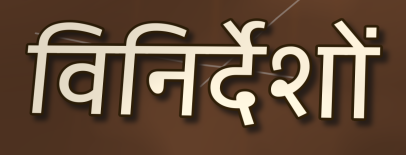
विनिर्देशों